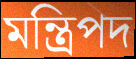
মন্ত্রিপদ